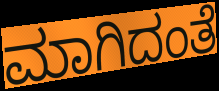
ಮಾಗಿದಂತೆ